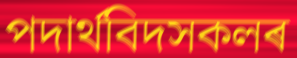
পদাৰ্থবিদসকলৰ